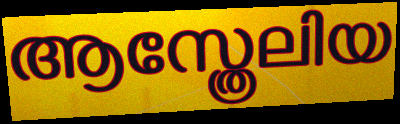
ആസ്ത്രേലിയ